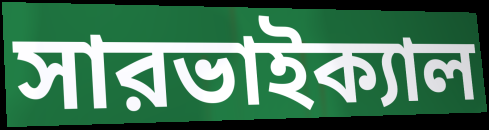
সারভাইক্যাল